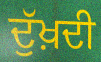
ਦੁੱਖ਼ਦੀ